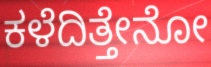
ಕಳೆದಿತ್ತೇನೋ